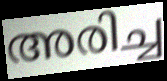
അരിച്ച